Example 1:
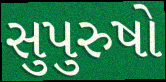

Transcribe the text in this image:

સુપુરુષો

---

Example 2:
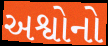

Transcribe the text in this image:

અશ્વોનો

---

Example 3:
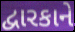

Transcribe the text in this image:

દ્વારકાને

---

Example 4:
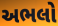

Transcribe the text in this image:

અભલો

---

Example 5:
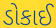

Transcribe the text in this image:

ડોકાઈ